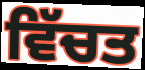
ਵਿੱਚਤ